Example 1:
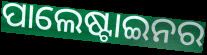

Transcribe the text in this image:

ପାଲେଷ୍ଟାଇନର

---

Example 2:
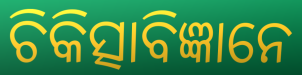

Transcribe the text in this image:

ଚିକିତ୍ସାବିଜ୍ଞାନେ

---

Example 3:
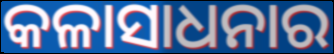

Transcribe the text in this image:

କଳାସାଧନାର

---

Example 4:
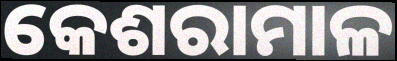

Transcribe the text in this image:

କେଶରାମାଳ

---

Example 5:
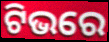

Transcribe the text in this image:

ଟିଭରେ